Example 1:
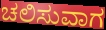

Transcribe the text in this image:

ಚಲಿಸುವಾಗ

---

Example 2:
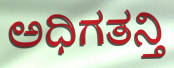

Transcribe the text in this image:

ಅಧಿಗತನ್ತಿ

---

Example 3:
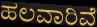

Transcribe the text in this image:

ಹಲವಾರಿವೆ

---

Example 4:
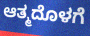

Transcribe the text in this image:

ಆತ್ಮದೊಳಗೆ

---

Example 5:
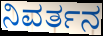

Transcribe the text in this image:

ನಿವರ್ತನ